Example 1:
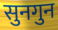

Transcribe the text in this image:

सुनगुन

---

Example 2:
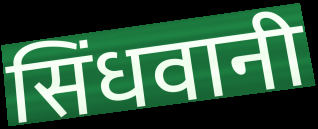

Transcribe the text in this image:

सिंधवानी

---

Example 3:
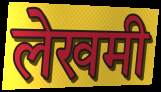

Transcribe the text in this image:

लेखमी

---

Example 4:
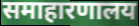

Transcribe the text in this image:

समाहारणालय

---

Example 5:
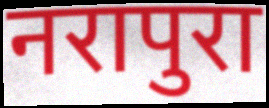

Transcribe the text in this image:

नरापुरा